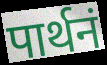
पार्थनं